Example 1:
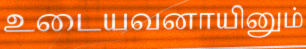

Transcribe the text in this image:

உடையவனாயினும்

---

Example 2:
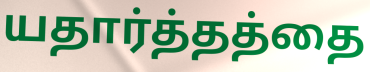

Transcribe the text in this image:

யதார்த்தத்தை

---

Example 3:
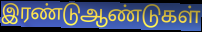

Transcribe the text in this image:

இரண்டுஆண்டுகள்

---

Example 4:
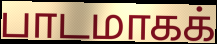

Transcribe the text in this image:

பாடமாகக்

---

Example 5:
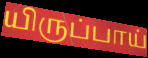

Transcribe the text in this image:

யிருப்பாய்